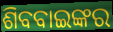
ଶିବବାଇଙ୍କର